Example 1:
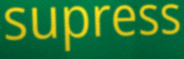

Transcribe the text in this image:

supress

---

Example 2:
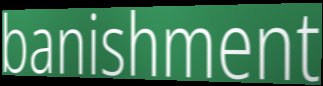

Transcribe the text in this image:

banishment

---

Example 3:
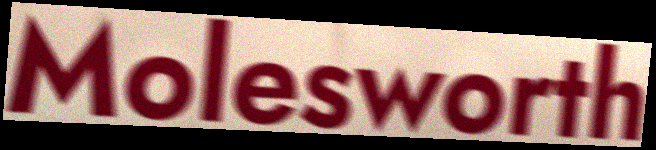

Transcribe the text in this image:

Molesworth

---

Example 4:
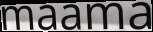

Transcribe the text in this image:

maama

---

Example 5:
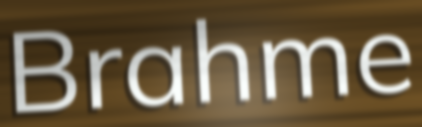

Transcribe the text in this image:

Brahme